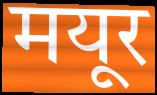
मयूर